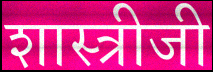
शास्त्रीजी